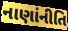
નાણાંનીતિ